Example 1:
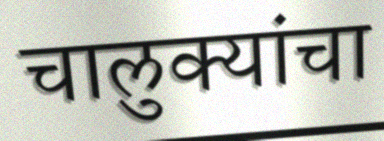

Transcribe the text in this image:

चालुक्यांचा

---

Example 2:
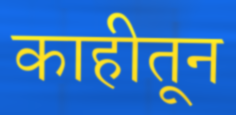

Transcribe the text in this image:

काहीतून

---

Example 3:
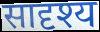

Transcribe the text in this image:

सादृश्य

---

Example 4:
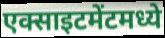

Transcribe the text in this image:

एक्साइटमेंटमध्ये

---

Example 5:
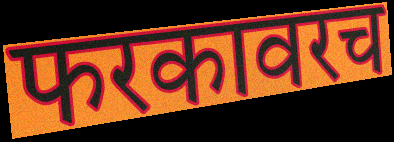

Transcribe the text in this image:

फरकावरच